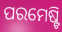
ପରମେଷ୍ଟି